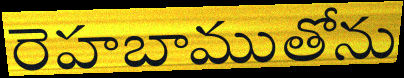
రెహబాముతోను